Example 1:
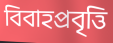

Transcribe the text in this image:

বিবাহপ্রবৃত্তি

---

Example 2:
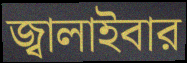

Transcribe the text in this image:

জ্বালাইবার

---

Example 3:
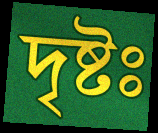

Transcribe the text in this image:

দৃষ্টঃ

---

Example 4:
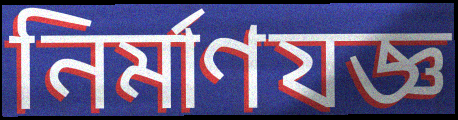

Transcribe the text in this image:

নির্মাণযজ্ঞ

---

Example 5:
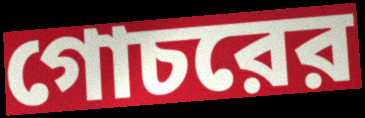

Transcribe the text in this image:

গোচরের